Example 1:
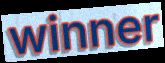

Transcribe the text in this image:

winner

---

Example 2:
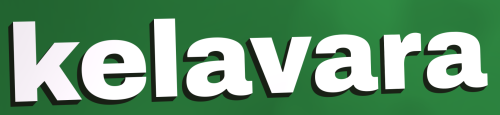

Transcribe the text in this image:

kelavara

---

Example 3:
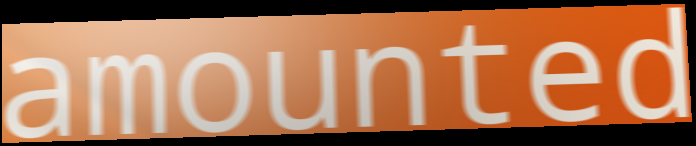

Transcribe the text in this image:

amounted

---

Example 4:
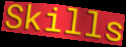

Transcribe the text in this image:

Skills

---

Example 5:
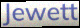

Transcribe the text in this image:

Jewett